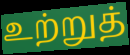
உற்றுத்